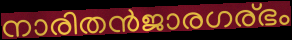
നാരിതൻജാരഗര്ഭം